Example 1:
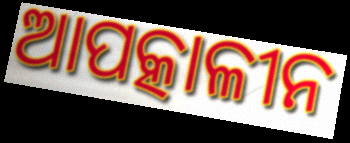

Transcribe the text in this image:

ଆପତ୍କାଳୀନ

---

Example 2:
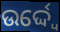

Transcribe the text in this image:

ଉର୍ଦ୍ଦ୍ୱେ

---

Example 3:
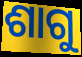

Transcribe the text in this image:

ଶାଗୁ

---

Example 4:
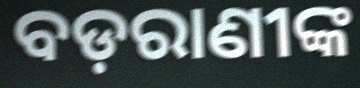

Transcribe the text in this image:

ବଡ଼ରାଣୀଙ୍କ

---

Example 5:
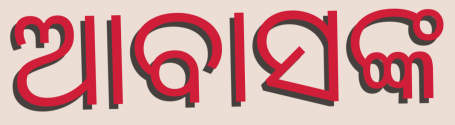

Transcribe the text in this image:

ଆବାସଙ୍କ